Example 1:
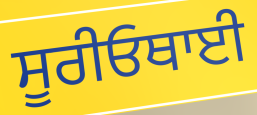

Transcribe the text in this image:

ਸੂਰੀਓਥਾਈ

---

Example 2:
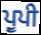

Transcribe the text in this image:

ਪੂਪੀ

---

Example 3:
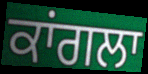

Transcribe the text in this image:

ਕਾਂਗਲਾ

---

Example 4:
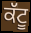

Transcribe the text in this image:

ਕੱਟੂ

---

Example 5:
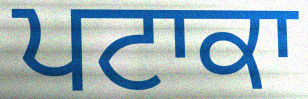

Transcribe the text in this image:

ਪਟਾਕਾ